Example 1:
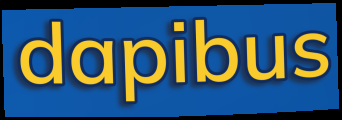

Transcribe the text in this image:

dapibus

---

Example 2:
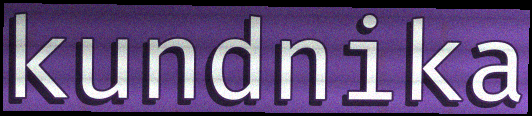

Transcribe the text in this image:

kundnika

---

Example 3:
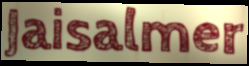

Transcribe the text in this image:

Jaisalmer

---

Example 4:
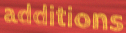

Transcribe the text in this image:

additions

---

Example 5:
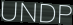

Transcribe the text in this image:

UNDP